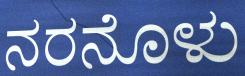
ನರನೊಳು